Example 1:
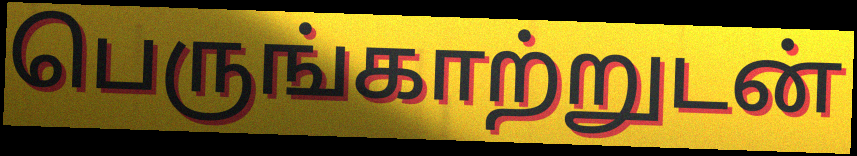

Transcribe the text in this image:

பெருங்காற்றுடன்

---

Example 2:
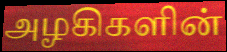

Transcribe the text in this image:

அழகிகளின்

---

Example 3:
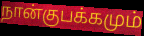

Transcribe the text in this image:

நான்குபக்கமும்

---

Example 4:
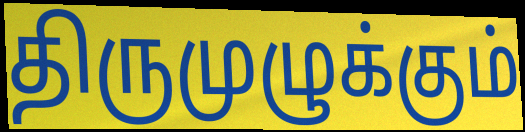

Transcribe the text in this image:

திருமுழுக்கும்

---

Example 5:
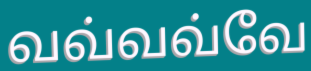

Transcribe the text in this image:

வவ்வவ்வே